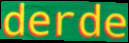
derde